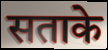
सताके